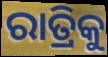
ରାତ୍ରିକୁ